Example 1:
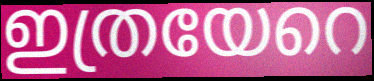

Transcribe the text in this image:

ഇത്രയേറെ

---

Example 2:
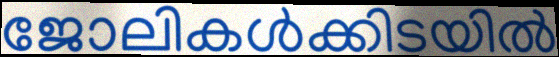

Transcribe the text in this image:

ജോലികൾക്കിടയിൽ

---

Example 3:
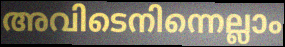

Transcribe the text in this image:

അവിടെനിന്നെല്ലാം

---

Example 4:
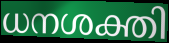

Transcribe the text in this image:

ധനശക്തി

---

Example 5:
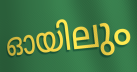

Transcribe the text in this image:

ഓയിലും